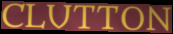
CLUTTON